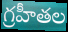
గ్రహీతల